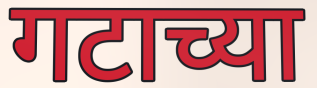
गटाच्या